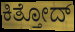
ಕಿತ್ತೋದ್